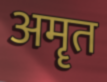
अमॄत